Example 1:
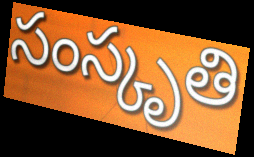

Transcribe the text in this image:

సంస్కృతి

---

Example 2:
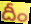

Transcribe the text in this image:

దీం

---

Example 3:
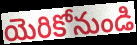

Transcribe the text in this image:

యెరికోనుండి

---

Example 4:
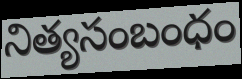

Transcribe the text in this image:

నిత్యసంబంధం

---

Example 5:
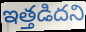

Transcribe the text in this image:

ఇత్తడిదని